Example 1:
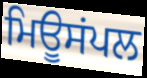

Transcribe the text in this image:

ਮਿਊਸਂਪਲ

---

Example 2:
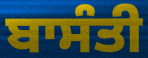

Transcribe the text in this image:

ਬਾਸੰਤੀ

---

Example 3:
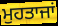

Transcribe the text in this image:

ਮੁਹਤਾਜਾਂ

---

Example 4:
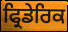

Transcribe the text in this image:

ਫ੍ਰਿਡੇਰਿਕ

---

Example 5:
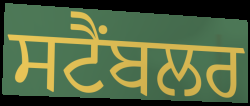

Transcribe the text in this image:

ਸਟੈਂਬਲਰ